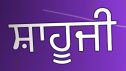
ਸ਼ਾਹੂਜੀ